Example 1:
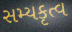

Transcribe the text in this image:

સમ્યકૃત્વ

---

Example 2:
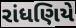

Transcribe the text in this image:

રાંધણિયે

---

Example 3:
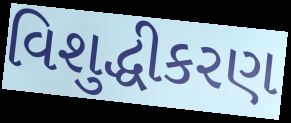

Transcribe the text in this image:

વિશુદ્ધીકરણ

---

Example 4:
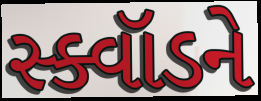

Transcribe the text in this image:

સ્ક્વૉડને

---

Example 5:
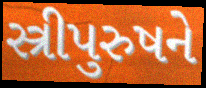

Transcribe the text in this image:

સ્ત્રીપુરુષને